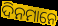
ଦିନମାନେ